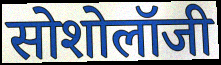
सोशोलॉजी